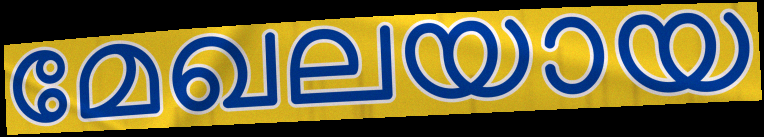
മേഖലയായ